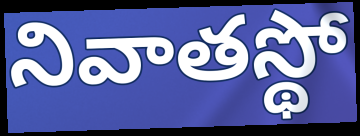
నివాతస్థో